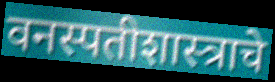
वनस्पतीशास्त्राचे